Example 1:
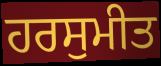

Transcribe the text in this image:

ਹਰਸੁਮੀਤ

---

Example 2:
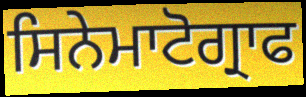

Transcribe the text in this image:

ਸਿਨੇਮਾਟੋਗ੍ਰਾਫ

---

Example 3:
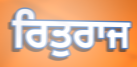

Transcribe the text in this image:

ਰਿਤੁਰਾਜ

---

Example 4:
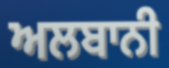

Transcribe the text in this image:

ਅਲਬਾਨੀ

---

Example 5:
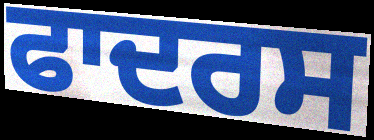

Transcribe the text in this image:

ਫਾਦਰਸ